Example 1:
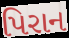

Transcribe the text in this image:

પિરાન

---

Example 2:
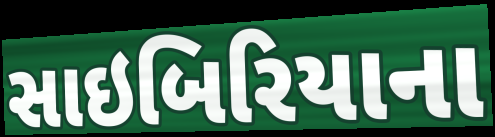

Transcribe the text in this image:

સાઇબિરિયાના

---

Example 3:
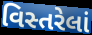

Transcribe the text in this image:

વિસ્તરેલાં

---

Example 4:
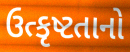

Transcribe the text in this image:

ઉત્કૃષ્ટતાનો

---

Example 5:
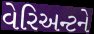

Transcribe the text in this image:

વેરિઅન્ટને